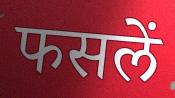
फसलें